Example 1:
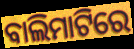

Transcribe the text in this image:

ବାଲିମାଟିରେ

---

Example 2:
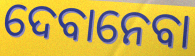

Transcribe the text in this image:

ଦେବାନେବା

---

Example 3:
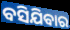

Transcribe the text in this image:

ବସିଯିବାର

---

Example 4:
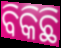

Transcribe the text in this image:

ବିକିଛି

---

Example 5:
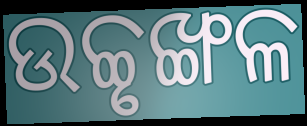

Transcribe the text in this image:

ଉଚ୍ଚୃଙ୍ଖଳ